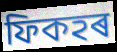
ফিকহৰ